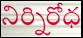
నిర్నిరోధ